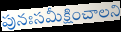
పునఃసమీక్షించాలని